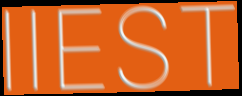
IIEST